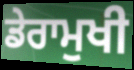
ਡੇਰਾਮੁਖੀ